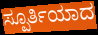
ಸ್ಪೂರ್ತಿಯಾದ